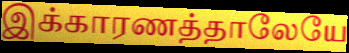
இக்காரணத்தாலேயே